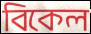
বিকেল